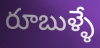
రూబుళ్ళే